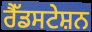
ਰੈੱਡਸਟੇਸ਼ਨ